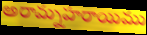
అరామ్నహరాయిము